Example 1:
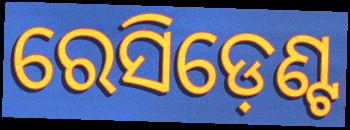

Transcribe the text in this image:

ରେସିଡ଼େଣ୍ଟ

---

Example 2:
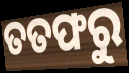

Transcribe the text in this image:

ତତଫରୁ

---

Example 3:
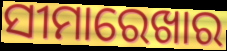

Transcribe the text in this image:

ସୀମାରେଖାର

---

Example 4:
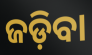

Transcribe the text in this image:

ଜଡ଼ିବା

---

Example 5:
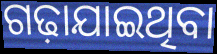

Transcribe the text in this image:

ଗଢ଼ାଯାଇଥିବା